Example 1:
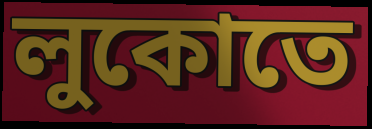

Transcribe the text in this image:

লুকোতে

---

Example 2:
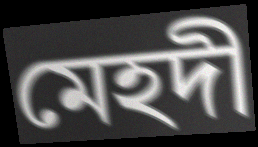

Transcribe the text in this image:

মেহদী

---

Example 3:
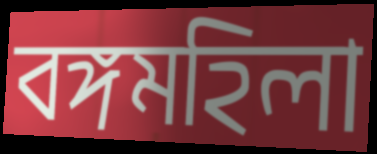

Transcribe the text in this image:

বঙ্গমহিলা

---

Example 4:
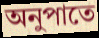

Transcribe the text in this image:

অনুপাতে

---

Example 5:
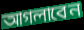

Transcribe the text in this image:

আগলাবেন